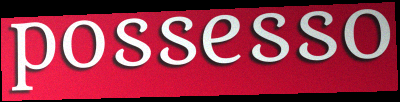
possesso